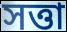
সত্তা